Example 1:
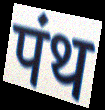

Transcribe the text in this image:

पंथ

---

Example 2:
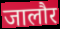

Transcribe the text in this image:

जालौर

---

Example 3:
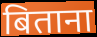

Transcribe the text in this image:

बिताना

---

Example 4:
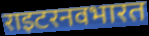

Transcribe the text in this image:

राइटरनवभारत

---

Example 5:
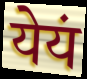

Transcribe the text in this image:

येयं